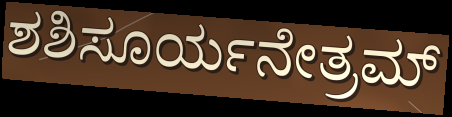
ಶಶಿಸೂರ್ಯನೇತ್ರಮ್